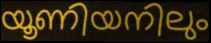
യൂണിയനിലും